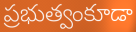
ప్రభుత్వంకూడా